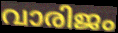
വാരിജം